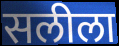
सलीला